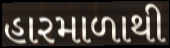
હારમાળાથી